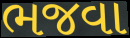
ભજવા